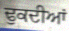
ਢੁਕਦੀਆਂ